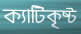
ক্যাটিকৃষ্ট